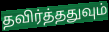
தவிர்த்ததுவும்